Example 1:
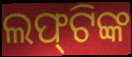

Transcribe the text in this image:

ଲଫ୍‌ଟିଙ୍କ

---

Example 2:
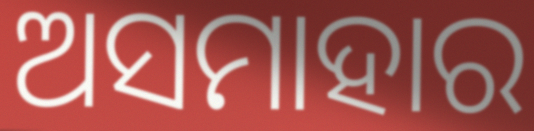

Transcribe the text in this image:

ଅସମାହାର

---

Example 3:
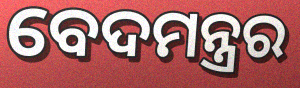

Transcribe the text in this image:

ବେଦମନ୍ତ୍ରର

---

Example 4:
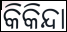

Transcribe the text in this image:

କିକିନ୍ଦା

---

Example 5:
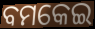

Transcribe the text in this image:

ବମକେଇ